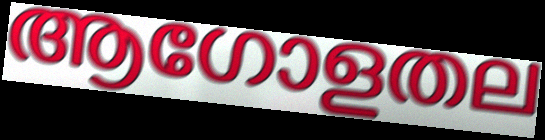
ആഗോളതല